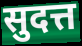
सुदत्त